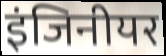
इंजिनीयर